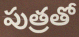
పుత్రతో